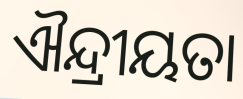
ଐନ୍ଦ୍ରୀୟତା